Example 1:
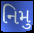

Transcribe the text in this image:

નિમુ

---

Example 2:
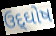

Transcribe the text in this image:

ઉદ્‌ઘોષ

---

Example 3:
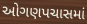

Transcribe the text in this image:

ઓગણપચાસમાં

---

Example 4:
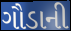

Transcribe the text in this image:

ગૌડાની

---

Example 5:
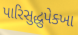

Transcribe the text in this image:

પારિસુદ્ધુપેક્ખા